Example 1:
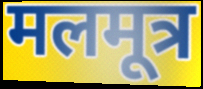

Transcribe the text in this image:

मलमूत्र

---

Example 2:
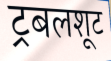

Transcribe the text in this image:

ट्रबलशूट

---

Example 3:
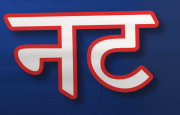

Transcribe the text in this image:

नट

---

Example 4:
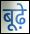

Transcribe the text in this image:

बूढ़े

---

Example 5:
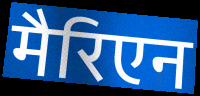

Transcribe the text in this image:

मैरिएन